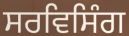
ਸਰਵਿਸਿੰਗ